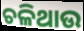
ଚଳିଥାଉ